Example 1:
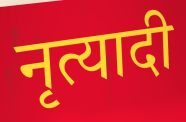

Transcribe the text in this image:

नृत्यादी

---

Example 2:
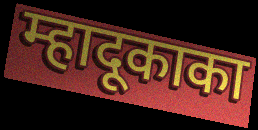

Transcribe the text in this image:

म्हादूकाका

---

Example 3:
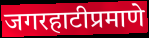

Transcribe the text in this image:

जगरहाटीप्रमाणे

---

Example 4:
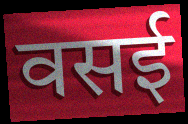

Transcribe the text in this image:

वसई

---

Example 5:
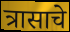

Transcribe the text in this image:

त्रासाचे